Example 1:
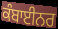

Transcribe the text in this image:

ਕੰਬਾਈਨਰ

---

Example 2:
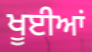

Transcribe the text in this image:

ਖੂਈਆਂ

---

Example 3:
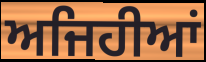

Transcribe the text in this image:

ਅਜਿਹੀਆਂ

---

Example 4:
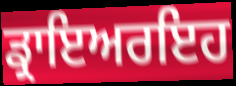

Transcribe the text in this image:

ਡ੍ਰਾਇਅਰਇਹ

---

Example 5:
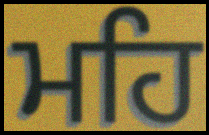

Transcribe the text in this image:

ਮਹਿ